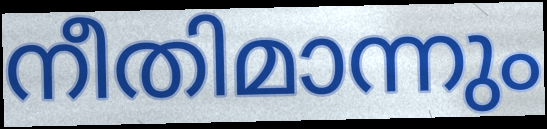
നീതിമാന്നും